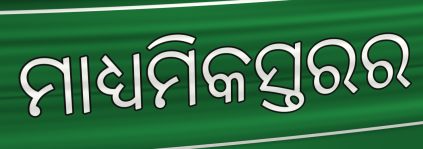
ମାଧ୍ୟମିକସ୍ତରର